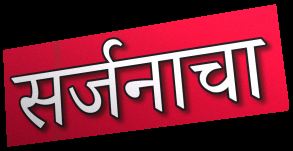
सर्जनाचा